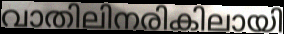
വാതിലിനരികിലായി